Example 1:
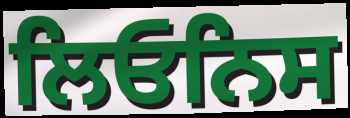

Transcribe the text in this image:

ਲਿਓਨਿਸ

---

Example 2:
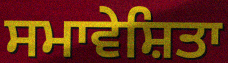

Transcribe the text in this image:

ਸਮਾਵੇਸ਼ਿਤਾ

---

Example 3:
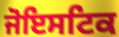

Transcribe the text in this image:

ਜੋਇਸਟਿਕ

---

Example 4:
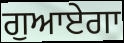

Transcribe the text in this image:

ਗੁਆਏਗਾ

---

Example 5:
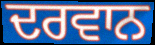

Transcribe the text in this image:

ਦਰਵਾਨ